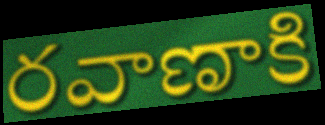
రవాణాకి